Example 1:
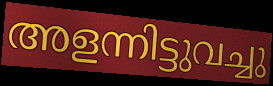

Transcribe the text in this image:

അളന്നിട്ടുവച്ചു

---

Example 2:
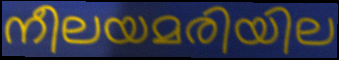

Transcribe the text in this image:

നീലയമരിയില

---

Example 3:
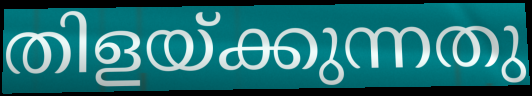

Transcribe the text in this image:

തിളയ്ക്കുന്നതു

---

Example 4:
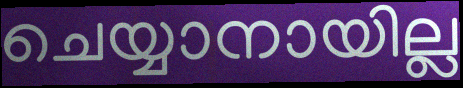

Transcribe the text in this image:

ചെയ്യാനായില്ല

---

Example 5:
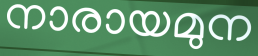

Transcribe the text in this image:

നാരായമുന